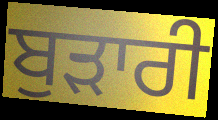
ਬੁੜਾਰੀ